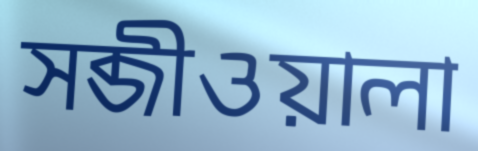
সব্জীওয়ালা